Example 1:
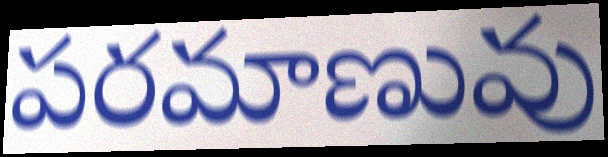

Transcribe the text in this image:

పరమాణువు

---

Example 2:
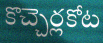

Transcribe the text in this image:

కొచ్చెర్లకోట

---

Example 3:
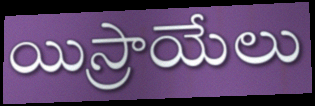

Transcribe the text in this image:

యిస్రాయేలు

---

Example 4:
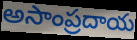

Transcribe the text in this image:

అసాంప్రదాయ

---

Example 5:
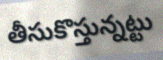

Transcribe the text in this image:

తీసుకొస్తున్నట్టు